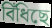
বিঁধিছে